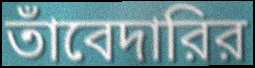
তাঁবেদারির